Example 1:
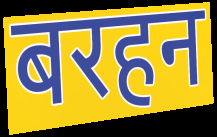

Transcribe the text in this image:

बरहन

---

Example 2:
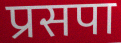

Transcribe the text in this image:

प्रसपा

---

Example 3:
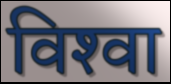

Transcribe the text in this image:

विश्‍वा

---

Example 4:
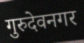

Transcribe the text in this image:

गुरुदेवनगर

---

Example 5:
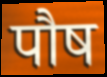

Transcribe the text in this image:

पौष